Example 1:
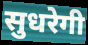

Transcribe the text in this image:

सुधरेगी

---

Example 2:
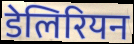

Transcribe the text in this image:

डेलिरियन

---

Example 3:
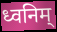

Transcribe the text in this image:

ध्वनिम्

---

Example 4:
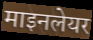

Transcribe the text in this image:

माइनलेयर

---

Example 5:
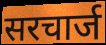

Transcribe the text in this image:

सरचार्ज